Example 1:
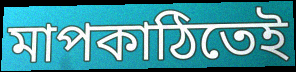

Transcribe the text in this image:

মাপকাঠিতেই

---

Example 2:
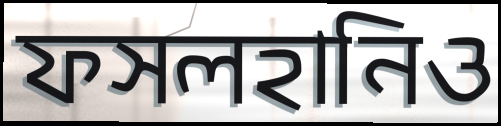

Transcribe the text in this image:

ফসলহানিও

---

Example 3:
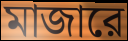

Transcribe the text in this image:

মাজারে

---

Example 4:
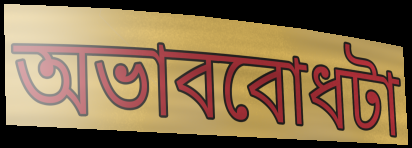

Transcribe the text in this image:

অভাববোধটা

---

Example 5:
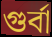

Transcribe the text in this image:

গুর্বা